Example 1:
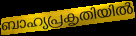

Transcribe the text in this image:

ബാഹ്യപ്രകൃതിയിൽ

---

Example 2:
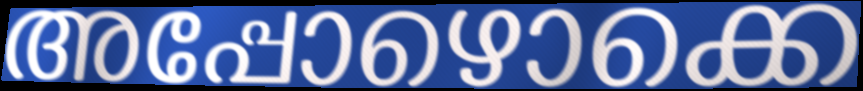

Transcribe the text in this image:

അപ്പോഴൊക്കെ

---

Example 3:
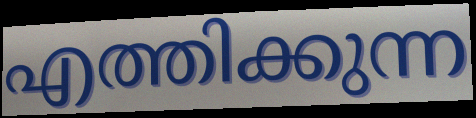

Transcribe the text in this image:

എത്തിക്കുന്ന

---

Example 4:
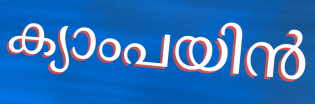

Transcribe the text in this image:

ക്യാംപയിൻ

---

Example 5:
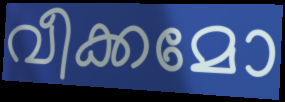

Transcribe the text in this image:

വീക്കമോ